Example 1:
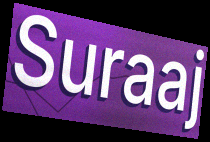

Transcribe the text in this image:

Suraaj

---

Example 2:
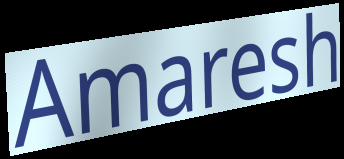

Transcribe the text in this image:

Amaresh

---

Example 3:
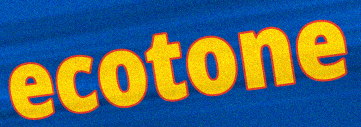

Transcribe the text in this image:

ecotone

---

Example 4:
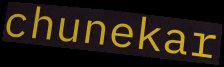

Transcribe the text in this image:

chunekar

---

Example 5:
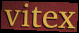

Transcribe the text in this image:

vitex